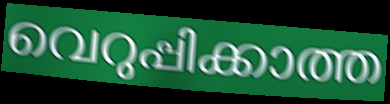
വെറുപ്പിക്കാത്ത